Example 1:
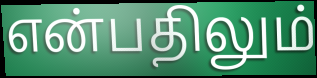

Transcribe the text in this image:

என்பதிலும்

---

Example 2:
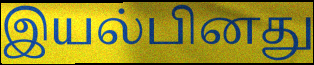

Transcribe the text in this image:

இயல்பினது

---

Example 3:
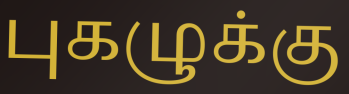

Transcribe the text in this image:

புகழுக்கு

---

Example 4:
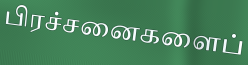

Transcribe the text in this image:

பிரச்சனைகளைப்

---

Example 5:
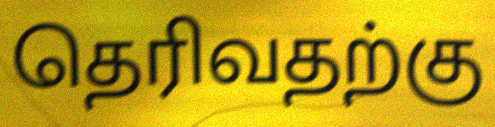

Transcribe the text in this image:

தெரிவதற்கு